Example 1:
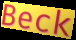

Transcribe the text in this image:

Beck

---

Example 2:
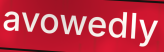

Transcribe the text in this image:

avowedly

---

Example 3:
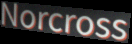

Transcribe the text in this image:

Norcross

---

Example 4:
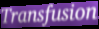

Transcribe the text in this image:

Transfusion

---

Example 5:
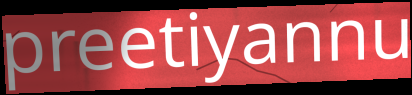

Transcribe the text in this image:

preetiyannu